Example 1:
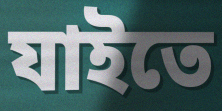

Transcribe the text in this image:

যাইতে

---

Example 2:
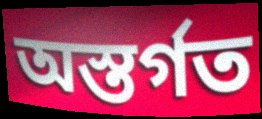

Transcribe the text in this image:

অস্তর্গত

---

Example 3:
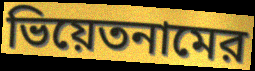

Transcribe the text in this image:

ভিয়েতনামের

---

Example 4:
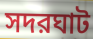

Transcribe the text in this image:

সদরঘাট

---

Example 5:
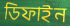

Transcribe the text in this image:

ডিফাইন